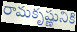
రామకృష్ణునికి